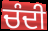
ਚੰਦੀ